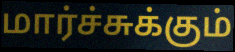
மார்ச்சுக்கும்